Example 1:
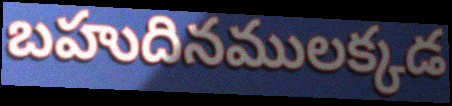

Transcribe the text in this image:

బహుదినములక్కడ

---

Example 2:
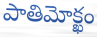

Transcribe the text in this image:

పాతిమోక్ఖం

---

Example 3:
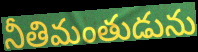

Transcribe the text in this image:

నీతిమంతుడును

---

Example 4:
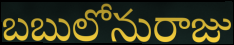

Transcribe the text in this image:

బబులోనురాజు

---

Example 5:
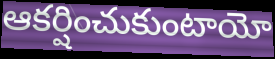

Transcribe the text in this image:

ఆకర్షించుకుంటాయో